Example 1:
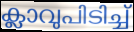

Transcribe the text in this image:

ക്ലാവുപിടിച്ച്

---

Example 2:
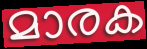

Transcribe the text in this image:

മാരക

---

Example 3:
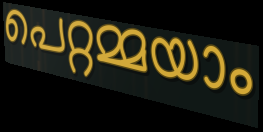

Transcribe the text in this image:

പെറ്റമ്മയാം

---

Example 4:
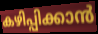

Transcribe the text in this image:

കഴിപ്പിക്കാൻ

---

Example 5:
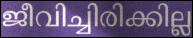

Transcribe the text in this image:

ജീവിച്ചിരിക്കില്ല